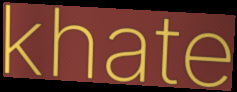
khate